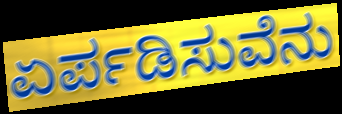
ಏರ್ಪಡಿಸುವೆನು